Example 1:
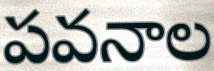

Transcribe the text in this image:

పవనాల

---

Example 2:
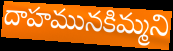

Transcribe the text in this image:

దాహమునకిమ్మని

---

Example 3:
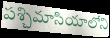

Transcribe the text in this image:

పశ్చిమాసియాలోని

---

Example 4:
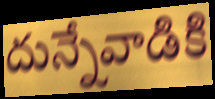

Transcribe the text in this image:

దున్నేవాడికి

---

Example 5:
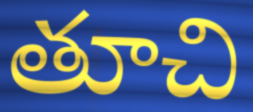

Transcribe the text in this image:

తూచి